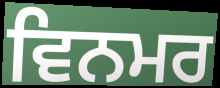
ਵਿਨਮਰ